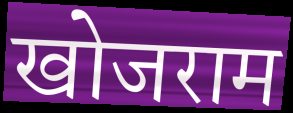
खोजराम